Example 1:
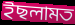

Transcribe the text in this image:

ইছলামত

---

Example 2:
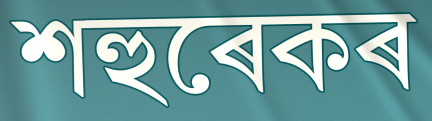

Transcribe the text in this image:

শহুৰেকৰ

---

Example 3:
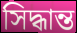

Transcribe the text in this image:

সিদ্ধান্ত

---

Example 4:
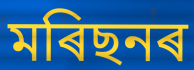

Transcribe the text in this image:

মৰিছনৰ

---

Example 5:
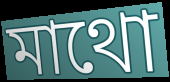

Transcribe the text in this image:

মাথো